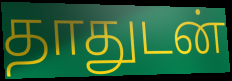
தாதுடன்